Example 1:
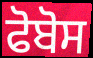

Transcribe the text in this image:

ਫੋਬੋਸ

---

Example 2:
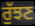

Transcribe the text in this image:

ਰੁੱਝਣ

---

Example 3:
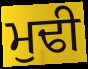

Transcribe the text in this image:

ਮੁਢੀ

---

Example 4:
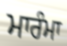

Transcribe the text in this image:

ਮਾਰੰਮਾ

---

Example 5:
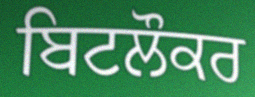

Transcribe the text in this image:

ਬਿਟਲੌਕਰ